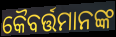
କୈବର୍ତ୍ତମାନଙ୍କ